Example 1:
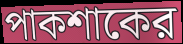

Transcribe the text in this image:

পাকশাকের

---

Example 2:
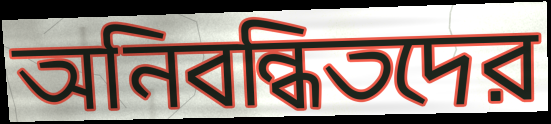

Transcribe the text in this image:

অনিবন্ধিতদের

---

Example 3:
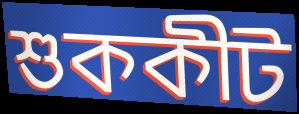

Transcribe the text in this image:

শুককীট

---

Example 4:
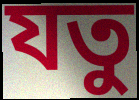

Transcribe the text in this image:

যতু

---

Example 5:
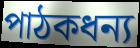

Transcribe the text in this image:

পাঠকধন্য